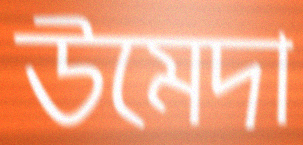
উমেদা